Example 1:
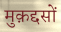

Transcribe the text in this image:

मुक़द्दसों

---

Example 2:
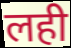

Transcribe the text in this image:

लही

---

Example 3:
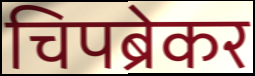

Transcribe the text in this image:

चिपब्रेकर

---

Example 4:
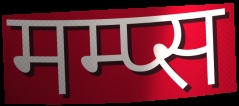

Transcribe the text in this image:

मम्प्स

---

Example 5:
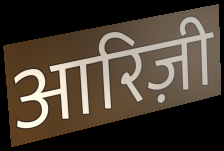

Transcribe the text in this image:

आरिज़ी